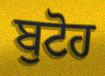
ਬੁਟੋਹ